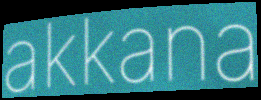
akkana